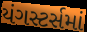
યંગસ્ટર્સમાં